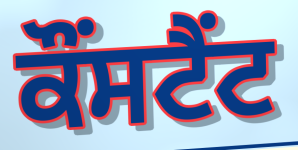
ਕੌਂਸਟੈਂਟ